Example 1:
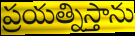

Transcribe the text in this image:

ప్రయత్నిస్తాను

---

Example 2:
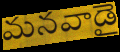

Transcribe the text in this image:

మనవాడై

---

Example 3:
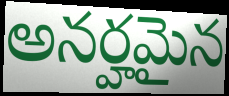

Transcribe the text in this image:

అనర్హమైన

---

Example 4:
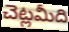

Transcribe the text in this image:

చెట్లమీది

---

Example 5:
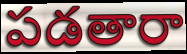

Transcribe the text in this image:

పడతారా